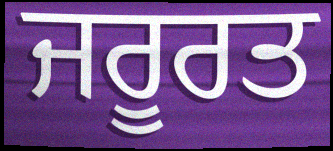
ਜਰੂਰਤ